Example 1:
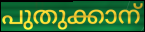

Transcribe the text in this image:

പുതുക്കാന്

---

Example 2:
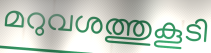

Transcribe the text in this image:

മറുവശത്തുകൂടി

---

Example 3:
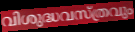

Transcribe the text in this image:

വിശുദ്ധവസ്ത്രവും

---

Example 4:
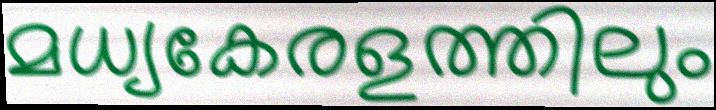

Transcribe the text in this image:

മധ്യകേരളത്തിലും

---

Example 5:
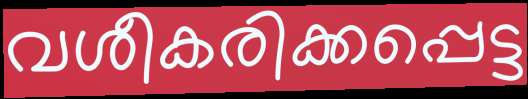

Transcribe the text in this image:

വശീകരിക്കപ്പെട്ട